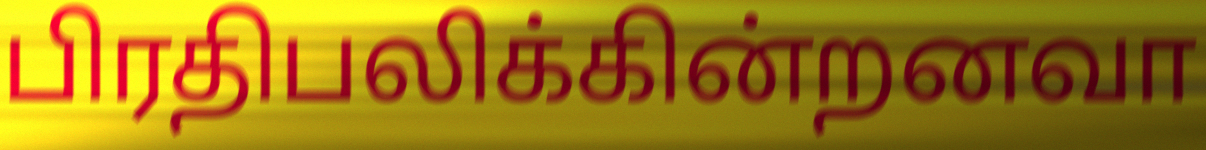
பிரதிபலிக்கின்றனவா